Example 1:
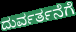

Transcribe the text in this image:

ದುರ್ವರ್ತನೆಗೆ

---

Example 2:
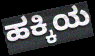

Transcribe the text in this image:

ಹಕ್ಕಿಯ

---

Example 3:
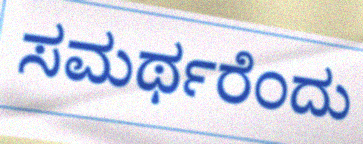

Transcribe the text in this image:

ಸಮರ್ಥರೆಂದು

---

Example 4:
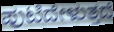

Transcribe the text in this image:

ಪುಟಿದೇಳುತ್ತದೆ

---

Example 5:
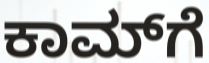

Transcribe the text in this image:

ಕಾಮ್‌ಗೆ